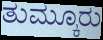
ತುಮ್ಕೂರು